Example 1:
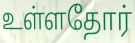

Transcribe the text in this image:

உள்ளதோர்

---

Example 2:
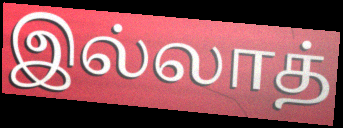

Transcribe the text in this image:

இல்லாத்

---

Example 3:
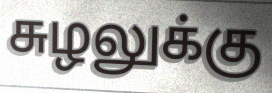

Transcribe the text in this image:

சுழலுக்கு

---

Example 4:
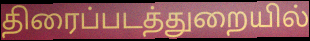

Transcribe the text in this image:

திரைப்படத்துறையில்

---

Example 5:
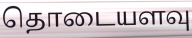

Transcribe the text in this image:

தொடையளவு